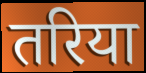
तरिया